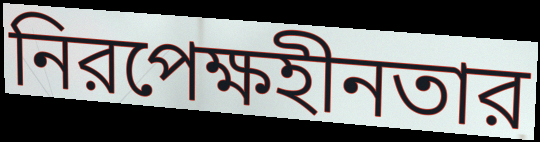
নিরপেক্ষহীনতার